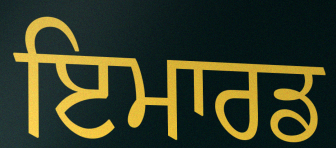
ਇਮਾਰਡ